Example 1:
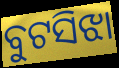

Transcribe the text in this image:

ବୁଟସିଝା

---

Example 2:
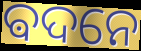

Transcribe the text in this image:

ଵଦନେ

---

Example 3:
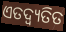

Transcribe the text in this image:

ଏତଦ୍ବ୍ୟତିତ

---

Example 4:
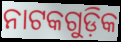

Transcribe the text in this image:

ନାଟକଗୁଡ଼ିକ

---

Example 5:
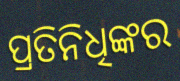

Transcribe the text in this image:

ପ୍ରତିନିଧିଙ୍କର